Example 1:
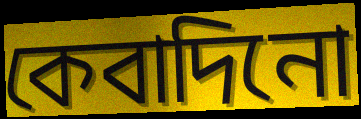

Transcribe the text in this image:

কেবাদিনো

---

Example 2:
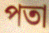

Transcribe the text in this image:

পতা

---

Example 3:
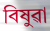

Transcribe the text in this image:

বিষুৱা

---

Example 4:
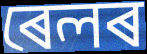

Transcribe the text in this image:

ৰেলৰ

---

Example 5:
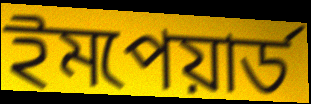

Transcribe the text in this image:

ইমপেয়াৰ্ড